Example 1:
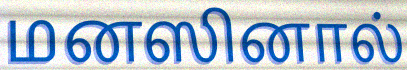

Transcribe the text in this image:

மனஸினால்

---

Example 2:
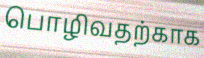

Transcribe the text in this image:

பொழிவதற்காக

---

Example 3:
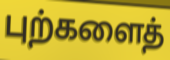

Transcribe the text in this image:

புற்களைத்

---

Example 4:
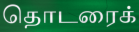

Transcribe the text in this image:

தொடரைக்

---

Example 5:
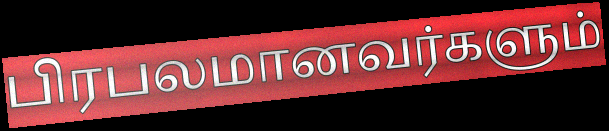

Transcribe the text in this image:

பிரபலமானவர்களும்